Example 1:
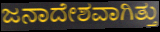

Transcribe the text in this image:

ಜನಾದೇಶವಾಗಿತ್ತು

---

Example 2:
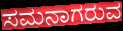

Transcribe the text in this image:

ಸಮನಾಗರುವ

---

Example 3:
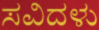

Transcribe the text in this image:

ಸವಿದಳು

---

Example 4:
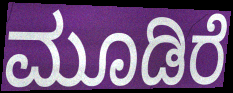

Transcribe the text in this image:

ಮೂಡಿರೆ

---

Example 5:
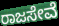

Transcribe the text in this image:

ರಾಜಸೇವೆ